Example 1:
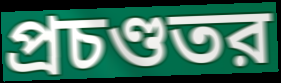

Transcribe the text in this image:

প্রচণ্ডতর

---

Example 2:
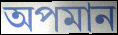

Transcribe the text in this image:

অপমান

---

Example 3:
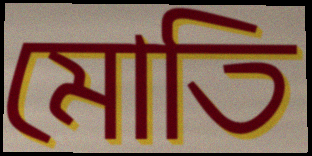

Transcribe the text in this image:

মোতি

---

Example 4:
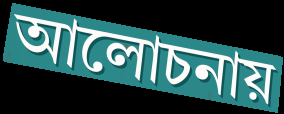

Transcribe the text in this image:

আলোচনায়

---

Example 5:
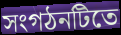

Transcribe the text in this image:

সংগঠনটিতে